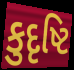
કુદૃષ્ટિ